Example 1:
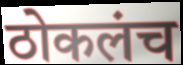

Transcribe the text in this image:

ठोकलंच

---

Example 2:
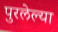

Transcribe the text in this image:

पुरलेल्या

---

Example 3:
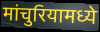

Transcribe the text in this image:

मांचुरियामध्ये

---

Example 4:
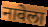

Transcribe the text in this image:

नावेला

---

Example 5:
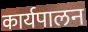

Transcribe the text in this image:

कार्यपालन